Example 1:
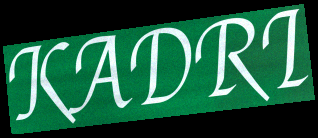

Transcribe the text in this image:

KADRI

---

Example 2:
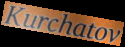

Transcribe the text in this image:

Kurchatov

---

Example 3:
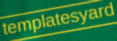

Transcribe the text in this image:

templatesyard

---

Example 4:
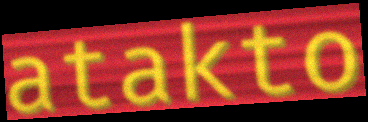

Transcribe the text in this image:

atakto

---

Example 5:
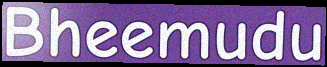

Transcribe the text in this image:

Bheemudu